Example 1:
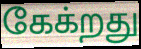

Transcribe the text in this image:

கேக்றது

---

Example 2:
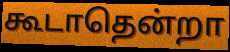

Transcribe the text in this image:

கூடாதென்றா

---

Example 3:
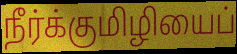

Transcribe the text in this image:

நீர்க்குமிழியைப்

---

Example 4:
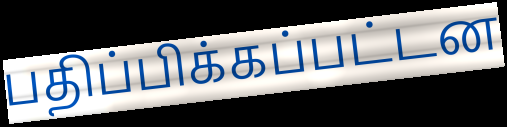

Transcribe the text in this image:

பதிப்பிக்கப்பட்டன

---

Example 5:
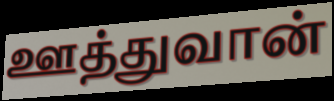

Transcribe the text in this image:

ஊத்துவான்